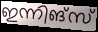
ഇന്നിങ്സ്